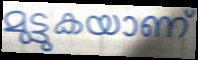
മുട്ടുകയാണ്